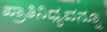
ಪ್ರಾತಿನಿಧ್ಯವನ್ನೂ